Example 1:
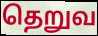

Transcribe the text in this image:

தெறுவ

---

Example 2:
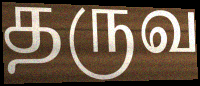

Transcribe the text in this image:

தருவ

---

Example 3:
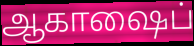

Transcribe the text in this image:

ஆகாஷைப்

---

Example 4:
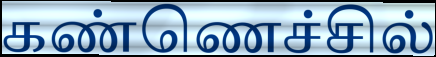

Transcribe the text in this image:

கண்ணெச்சில்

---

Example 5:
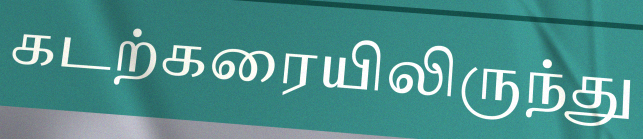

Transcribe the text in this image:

கடற்கரையிலிருந்து